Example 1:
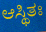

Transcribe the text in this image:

ಆಸ್ಥಿತಃ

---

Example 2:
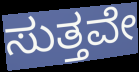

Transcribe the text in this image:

ಸುತ್ತವೇ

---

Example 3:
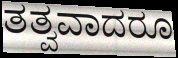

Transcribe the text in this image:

ತತ್ವವಾದರೂ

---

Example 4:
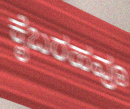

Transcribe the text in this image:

ಕೈಬರಹವೂ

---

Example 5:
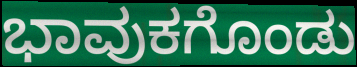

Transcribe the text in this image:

ಭಾವುಕಗೊಂಡು